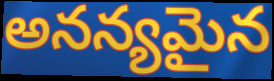
అనన్యమైన